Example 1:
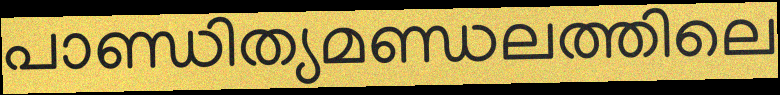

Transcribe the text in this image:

പാണ്ഡിത്യമണ്ഡലത്തിലെ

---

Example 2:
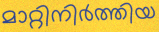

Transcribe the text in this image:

മാറ്റിനിർത്തിയ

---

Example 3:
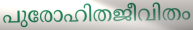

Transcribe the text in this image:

പുരോഹിതജീവിതം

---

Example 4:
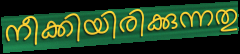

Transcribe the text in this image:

നീക്കിയിരിക്കുന്നതു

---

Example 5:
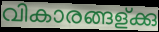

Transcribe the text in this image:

വികാരങ്ങള്ക്കു